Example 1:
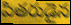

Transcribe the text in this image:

పితరుడైన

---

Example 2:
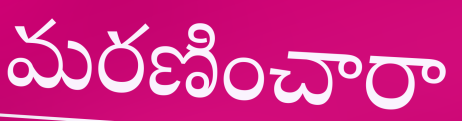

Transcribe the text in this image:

మరణించారా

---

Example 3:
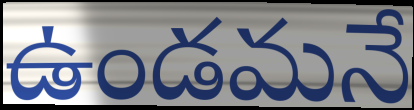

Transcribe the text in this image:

ఉండమనే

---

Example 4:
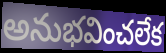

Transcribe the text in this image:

అనుభవించలేక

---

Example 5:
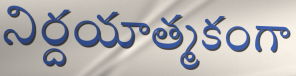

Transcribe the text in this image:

నిర్దయాత్మకంగా